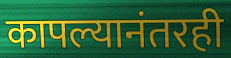
कापल्यानंतरही